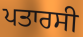
ਪਤਾਰਸੀ